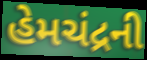
હેમચંદ્રની